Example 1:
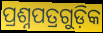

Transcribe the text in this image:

ପ୍ରଶ୍ନପତ୍ରଗୁଡ଼ିକ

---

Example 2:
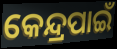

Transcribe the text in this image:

କେନ୍ଦ୍ରପାଇଁ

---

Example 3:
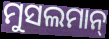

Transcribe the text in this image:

ମୁସଲମାନ୍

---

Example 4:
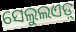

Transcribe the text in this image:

ସେଲୁଲଏଡ଼୍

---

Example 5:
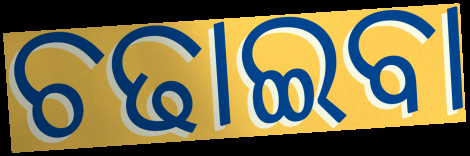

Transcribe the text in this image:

ଚଢାଇବା